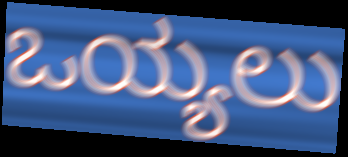
ಒಯ್ಯಲು